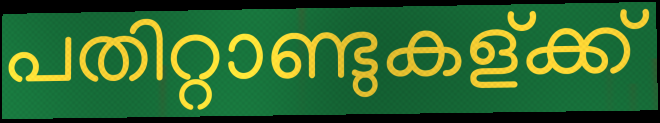
പതിറ്റാണ്ടുകള്ക്ക്